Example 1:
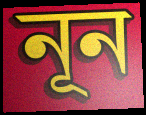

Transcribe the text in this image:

নূন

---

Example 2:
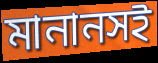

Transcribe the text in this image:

মানানসই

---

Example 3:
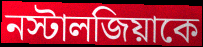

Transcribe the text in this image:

নস্টালজিয়াকে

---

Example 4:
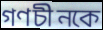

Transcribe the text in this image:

গণচীনকে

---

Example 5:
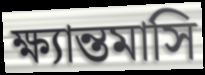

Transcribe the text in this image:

ক্ষ্যান্তমাসি